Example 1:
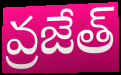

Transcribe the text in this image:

వ్రజేత్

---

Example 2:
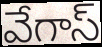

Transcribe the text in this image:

వేగాస్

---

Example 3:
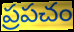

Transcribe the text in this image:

ప్రపచం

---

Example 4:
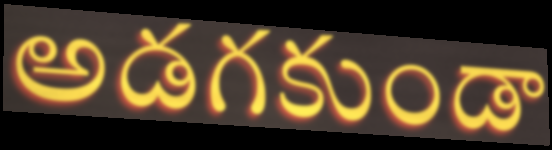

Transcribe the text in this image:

అడగకుండా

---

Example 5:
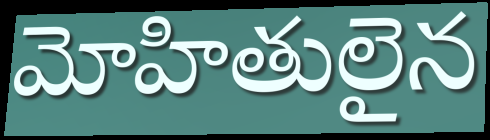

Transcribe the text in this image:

మోహితులైన